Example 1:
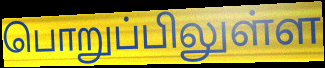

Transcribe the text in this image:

பொறுப்பிலுள்ள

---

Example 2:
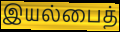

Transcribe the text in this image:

இயல்பைத்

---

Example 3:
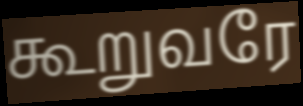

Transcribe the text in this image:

கூறுவரே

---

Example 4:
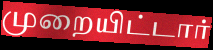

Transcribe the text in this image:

முறையிட்டார்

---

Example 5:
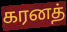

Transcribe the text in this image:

கரனத்